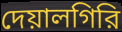
দেয়ালগিরি